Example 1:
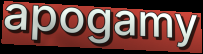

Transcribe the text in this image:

apogamy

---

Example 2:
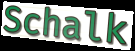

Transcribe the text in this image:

Schalk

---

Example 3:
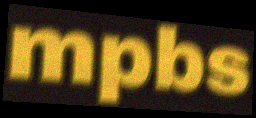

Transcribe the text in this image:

mpbs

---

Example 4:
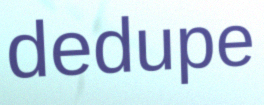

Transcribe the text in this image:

dedupe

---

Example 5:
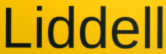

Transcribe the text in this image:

Liddell